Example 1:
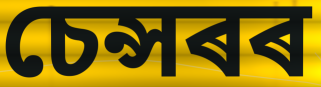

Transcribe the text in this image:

চেন্সৰৰ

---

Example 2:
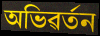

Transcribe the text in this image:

অভিৱৰ্তন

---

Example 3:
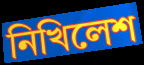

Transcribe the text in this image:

নিখিলেশ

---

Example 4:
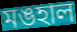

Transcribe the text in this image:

মঙহাল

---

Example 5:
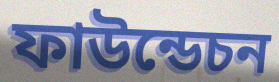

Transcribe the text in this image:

ফাউন্ডেচন